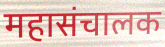
महासंचालक